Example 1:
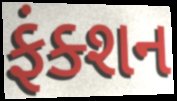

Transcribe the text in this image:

ફંક્શન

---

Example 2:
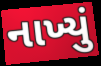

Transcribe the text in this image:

નાખ્યું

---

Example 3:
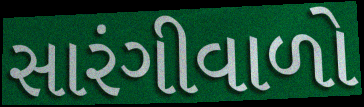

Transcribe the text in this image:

સારંગીવાળો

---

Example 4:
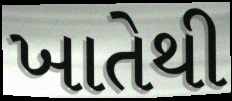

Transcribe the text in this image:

ખાતેથી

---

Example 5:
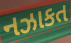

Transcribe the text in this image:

નઝાકત